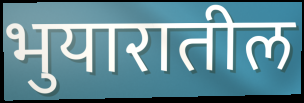
भुयारातील